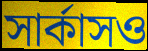
সার্কাসও